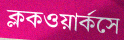
ক্লকওয়ার্কসে